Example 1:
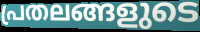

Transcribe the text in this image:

പ്രതലങ്ങളുടെ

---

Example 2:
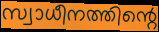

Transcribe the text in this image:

സ്വാധീനത്തിന്റെ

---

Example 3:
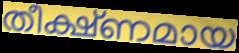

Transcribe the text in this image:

തീക്ഷ്ണമായ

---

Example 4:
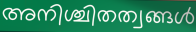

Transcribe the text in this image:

അനിശ്ചിതത്വങ്ങൾ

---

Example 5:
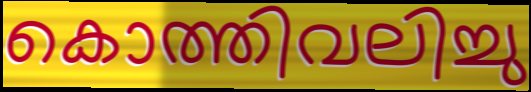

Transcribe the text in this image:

കൊത്തിവലിച്ചു